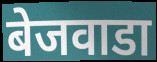
बेजवाडा